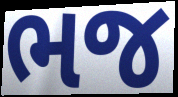
ભજ